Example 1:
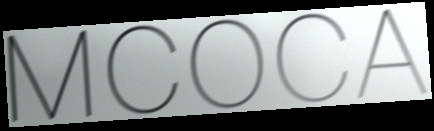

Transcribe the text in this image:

MCOCA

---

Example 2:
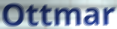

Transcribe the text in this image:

Ottmar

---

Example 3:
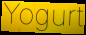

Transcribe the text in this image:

Yogurt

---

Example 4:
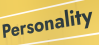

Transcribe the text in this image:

Personality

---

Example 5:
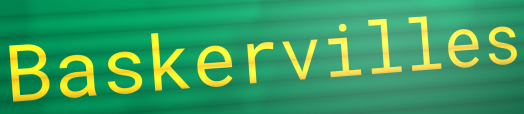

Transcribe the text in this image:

Baskervilles